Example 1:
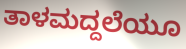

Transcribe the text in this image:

ತಾಳಮದ್ದಲೆಯೂ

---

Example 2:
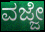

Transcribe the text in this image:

ವಜ್ಜೇ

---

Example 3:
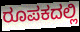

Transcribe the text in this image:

ರೂಪಕದಲ್ಲಿ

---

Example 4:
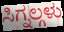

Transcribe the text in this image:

ಸಿಗ್ನಲ್ಗಳು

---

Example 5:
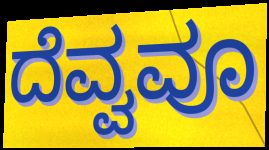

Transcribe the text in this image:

ದೆವ್ವವೂ